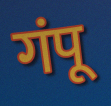
गंपू